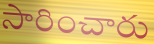
సారించారు